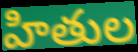
హితుల